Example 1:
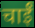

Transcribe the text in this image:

चाईं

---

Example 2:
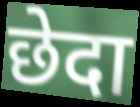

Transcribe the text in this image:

छेदा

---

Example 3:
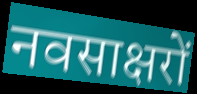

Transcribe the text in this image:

नवसाक्षरों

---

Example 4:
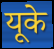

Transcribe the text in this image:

यूके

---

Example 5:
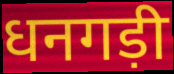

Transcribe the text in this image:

धनगड़ी